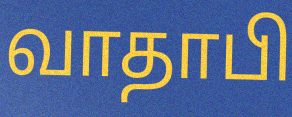
வாதாபி